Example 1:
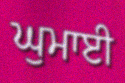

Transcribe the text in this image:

ਘੁਮਾਈ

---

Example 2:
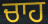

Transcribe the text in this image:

ਚਾਹ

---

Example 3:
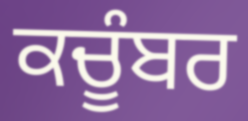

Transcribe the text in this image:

ਕਚੂੰਬਰ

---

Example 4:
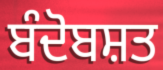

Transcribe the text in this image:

ਬੰਦੋਬਸ਼ਤ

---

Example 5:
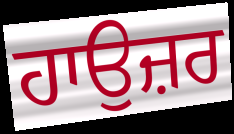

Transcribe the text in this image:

ਹਾਉਜ਼ਰ